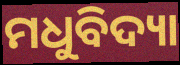
ମଧୁବିଦ୍ୟା